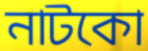
নাটকো